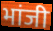
भांजी